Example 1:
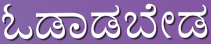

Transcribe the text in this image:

ಓಡಾಡಬೇಡ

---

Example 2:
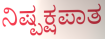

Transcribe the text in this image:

ನಿಷ್ಪಕ್ಷಪಾತ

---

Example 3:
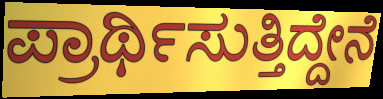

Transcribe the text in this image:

ಪ್ರಾರ್ಥಿಸುತ್ತಿದ್ದೇನೆ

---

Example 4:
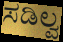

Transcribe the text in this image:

ಸಡಿಲ್ವ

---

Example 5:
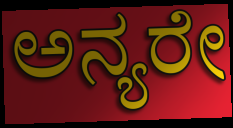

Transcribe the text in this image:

ಅನ್ಯರೇ